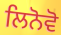
ਲਿਨੋਵੋ